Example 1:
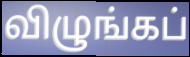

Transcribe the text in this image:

விழுங்கப்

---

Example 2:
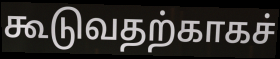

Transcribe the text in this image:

கூடுவதற்காகச்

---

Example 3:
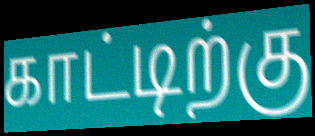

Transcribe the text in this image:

காட்டிற்கு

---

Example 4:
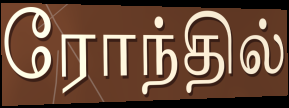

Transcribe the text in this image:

ரோந்தில்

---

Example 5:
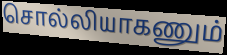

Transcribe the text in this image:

சொல்லியாகணும்